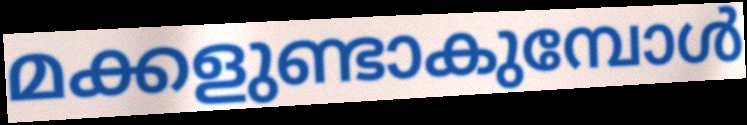
മക്കളുണ്ടാകുമ്പോൾ